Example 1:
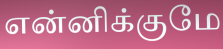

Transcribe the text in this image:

என்னிக்குமே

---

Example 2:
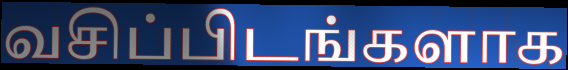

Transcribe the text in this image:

வசிப்பிடங்களாக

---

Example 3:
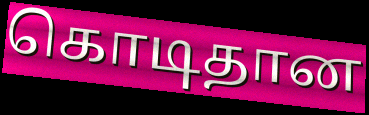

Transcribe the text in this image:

கொடிதான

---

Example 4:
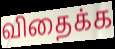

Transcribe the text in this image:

விதைக்க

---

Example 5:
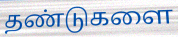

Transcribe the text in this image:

தண்டுகளை